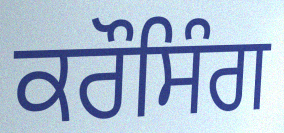
ਕਰੌਸਿੰਗ